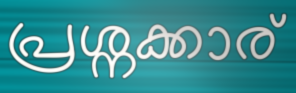
പ്രശ്നക്കാര്